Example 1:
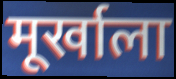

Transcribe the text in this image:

मूर्खाला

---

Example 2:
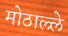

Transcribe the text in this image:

मोठाल्ले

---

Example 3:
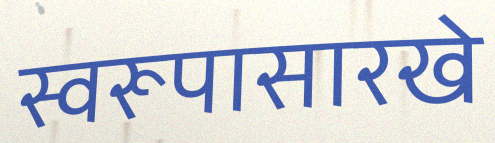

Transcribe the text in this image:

स्वरूपासारखे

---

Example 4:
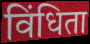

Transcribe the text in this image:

विंधिता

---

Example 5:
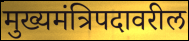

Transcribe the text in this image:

मुख्यमंत्रिपदावरील